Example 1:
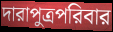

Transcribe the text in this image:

দারাপুত্রপরিবার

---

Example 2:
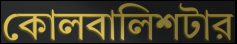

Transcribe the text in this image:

কোলবালিশটার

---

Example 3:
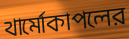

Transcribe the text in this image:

থার্মোকাপলের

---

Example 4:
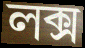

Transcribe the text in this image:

লক্স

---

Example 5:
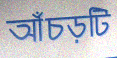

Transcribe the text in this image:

আঁচড়টি